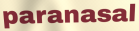
paranasal